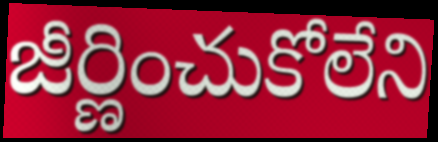
జీర్ణించుకోలేని